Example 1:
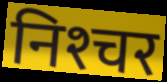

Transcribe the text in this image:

निश्चर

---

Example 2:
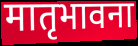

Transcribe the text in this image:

मातृभावना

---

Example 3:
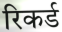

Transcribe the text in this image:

रिकर्ड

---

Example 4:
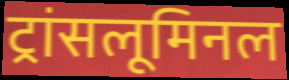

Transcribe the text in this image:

ट्रांसलूमिनल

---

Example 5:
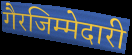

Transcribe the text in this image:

गैरजिम्मेदारी